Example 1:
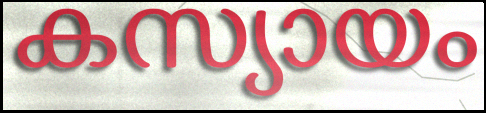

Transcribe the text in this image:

കസ്യായം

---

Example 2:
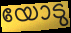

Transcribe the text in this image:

യോടു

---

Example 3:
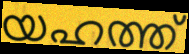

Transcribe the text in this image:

യഹത്ത്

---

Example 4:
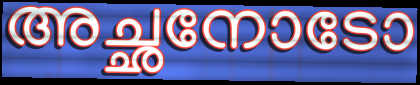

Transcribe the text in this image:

അച്ഛനോടോ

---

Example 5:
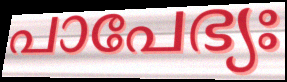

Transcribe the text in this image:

പാപേഭ്യഃ